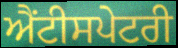
ਐਂਟੀਸਪੇਟਰੀ